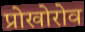
प्रोखोरोव